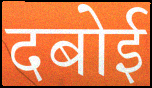
दबोई